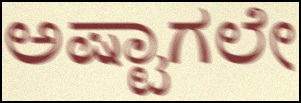
ಅಷ್ಟಾಗಲೇ